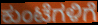
ಕುಂಟೆಗಳಿಗೆ